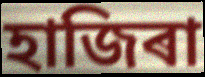
হাজিৰা